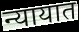
न्यायात